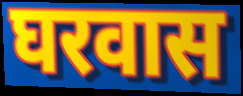
घरवास